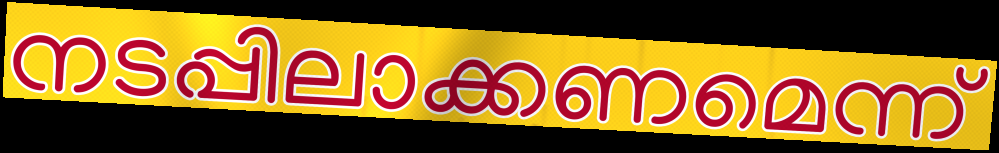
നടപ്പിലാക്കണമെന്ന്